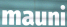
mauni